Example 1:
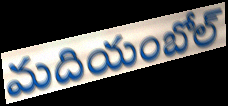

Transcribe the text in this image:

మదియంబోల్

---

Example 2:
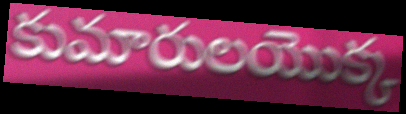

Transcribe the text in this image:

కుమారులయొక్క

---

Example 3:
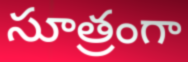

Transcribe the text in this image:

సూత్రంగా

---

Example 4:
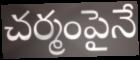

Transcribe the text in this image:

చర్మంపైనే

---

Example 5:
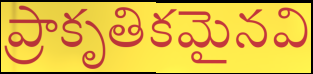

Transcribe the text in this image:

ప్రాకృతికమైనవి